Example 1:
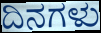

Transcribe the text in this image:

ದಿನಗಳು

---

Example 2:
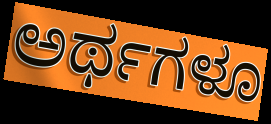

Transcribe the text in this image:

ಅರ್ಥಗಳೂ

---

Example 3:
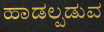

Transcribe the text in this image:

ಹಾಡಲ್ಪಡುವ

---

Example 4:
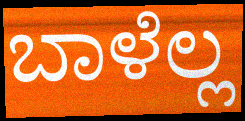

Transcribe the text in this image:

ಬಾಳೆಲ್ಲ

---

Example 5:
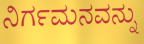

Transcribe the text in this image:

ನಿರ್ಗಮನವನ್ನು